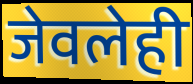
जेवलेही